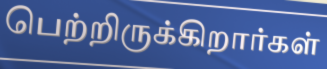
பெற்றிருக்கிறார்கள்